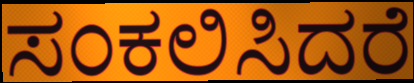
ಸಂಕಲಿಸಿದರೆ